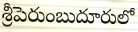
శ్రీపెరుంబుదూరులో